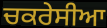
ਚਕਰੇਸੀਆ